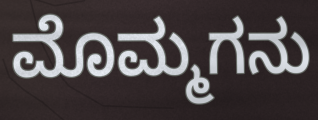
ಮೊಮ್ಮಗನು